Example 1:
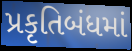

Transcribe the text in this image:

પ્રકૃતિબંધમાં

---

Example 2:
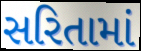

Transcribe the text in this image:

સરિતામાં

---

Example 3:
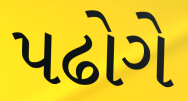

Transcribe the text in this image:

પઢોગે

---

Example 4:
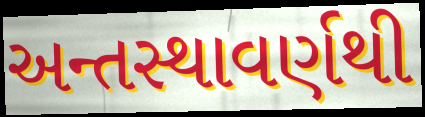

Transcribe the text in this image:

અન્તસ્થાવર્ણથી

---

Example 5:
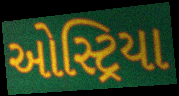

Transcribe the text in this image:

ઓસ્ટ્રિયા